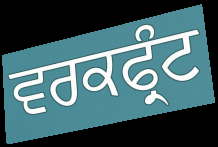
ਵਰਕਫ੍ਰੰਟ